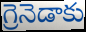
గ్రెనెడాకు